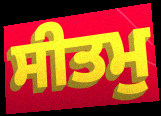
ਸੀਤਮੁ